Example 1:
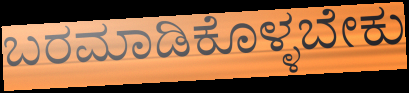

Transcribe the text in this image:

ಬರಮಾಡಿಕೊಳ್ಳಬೇಕು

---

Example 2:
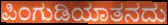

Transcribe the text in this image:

ಪಿಂಗುಡಿಯಾತನದು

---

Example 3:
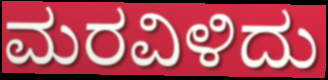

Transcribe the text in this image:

ಮರವಿಳಿದು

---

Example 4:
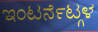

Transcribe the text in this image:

ಇಂಟರ್ನೆಟ್ಗಳ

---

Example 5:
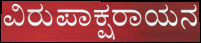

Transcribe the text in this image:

ವಿರುಪಾಕ್ಷರಾಯನ